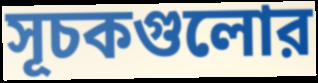
সূচকগুলোর